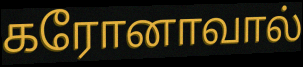
கரோனாவால்